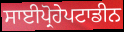
ਸਾਈਪ੍ਰੋਹੇਪਟਾਡੀਨ